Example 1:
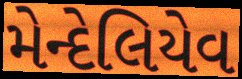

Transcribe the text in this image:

મેન્દેલિયેવ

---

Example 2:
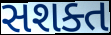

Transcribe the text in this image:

સશક્ત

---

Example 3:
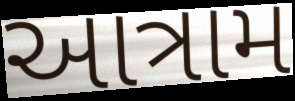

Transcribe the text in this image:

આત્રામ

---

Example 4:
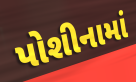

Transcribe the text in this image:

પોશીનામાં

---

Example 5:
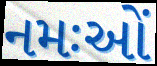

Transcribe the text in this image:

નમઃઓં